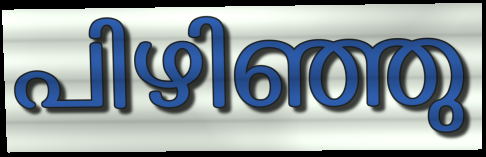
പിഴിഞ്ഞു